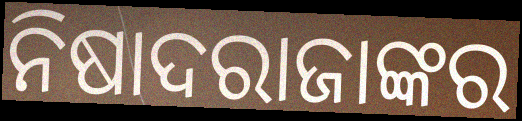
ନିଷାଦରାଜାଙ୍କର